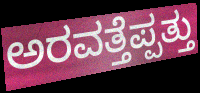
ಅರವತ್ತೆಪ್ಪತ್ತು